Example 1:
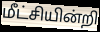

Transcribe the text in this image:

மீட்சியின்றி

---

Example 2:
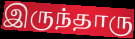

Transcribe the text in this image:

இருந்தாரு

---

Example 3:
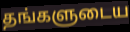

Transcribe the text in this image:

தங்களுடைய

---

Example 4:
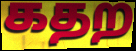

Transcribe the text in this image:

கதற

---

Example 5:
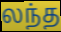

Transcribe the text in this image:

லந்த